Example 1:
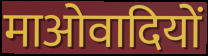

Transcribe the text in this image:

माओवादियों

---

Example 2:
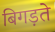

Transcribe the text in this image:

बिगड़ते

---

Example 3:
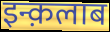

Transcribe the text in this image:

इन्क़लाब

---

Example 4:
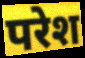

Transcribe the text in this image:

परेश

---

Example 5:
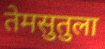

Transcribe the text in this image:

तेमसुतुला